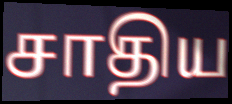
சாதிய